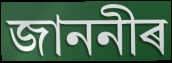
জাননীৰ